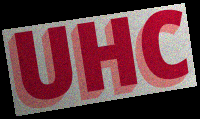
UHC